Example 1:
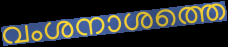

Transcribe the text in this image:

വംശനാശത്തെ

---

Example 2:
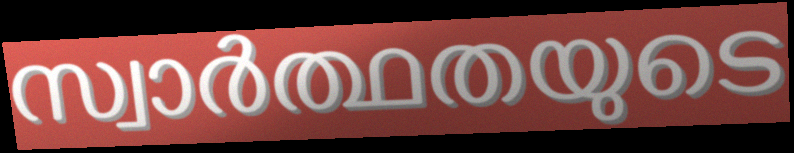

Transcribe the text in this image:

സ്വാർത്ഥതയുടെ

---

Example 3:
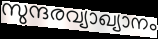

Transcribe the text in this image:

സുന്ദരവ്യാഖ്യാനം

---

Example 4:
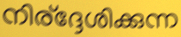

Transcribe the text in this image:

നിര്ദ്ദേശിക്കുന്ന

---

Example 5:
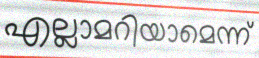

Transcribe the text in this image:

എല്ലാമറിയാമെന്ന്